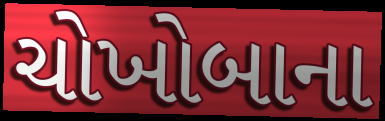
ચોખોબાના